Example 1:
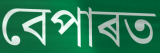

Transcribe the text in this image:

বেপাৰত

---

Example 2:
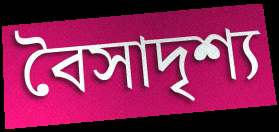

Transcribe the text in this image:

বৈসাদৃশ্য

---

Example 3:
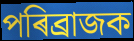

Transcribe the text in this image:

পৰিব্ৰাজক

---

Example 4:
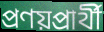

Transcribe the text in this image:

প্ৰণয়প্ৰাৰ্থী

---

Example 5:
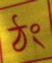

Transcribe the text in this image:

ঠং